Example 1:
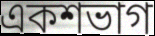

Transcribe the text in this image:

একশভাগ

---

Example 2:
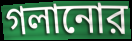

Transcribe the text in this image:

গলানোর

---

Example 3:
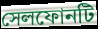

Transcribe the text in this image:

সেলফোনটি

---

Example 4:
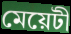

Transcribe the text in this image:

মেয়েটী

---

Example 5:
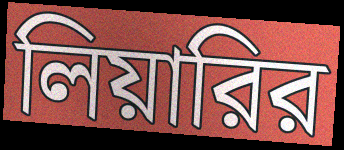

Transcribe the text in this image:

লিয়ারির